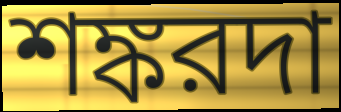
শঙ্করদা